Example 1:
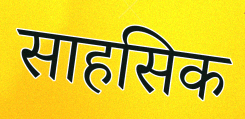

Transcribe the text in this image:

साहसिक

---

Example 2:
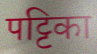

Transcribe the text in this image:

पट्टिका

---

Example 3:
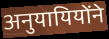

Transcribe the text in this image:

अनुयायियोंने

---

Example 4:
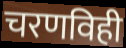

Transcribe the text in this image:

चरणविही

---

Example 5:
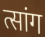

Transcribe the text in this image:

त्सांग